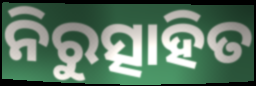
ନିରୁତ୍ସାହିତ